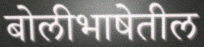
बोलीभाषेतील